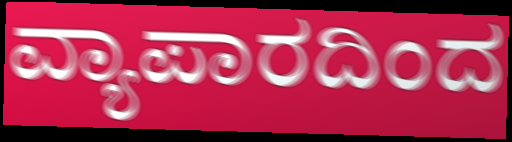
ವ್ಯಾಪಾರದಿಂದ